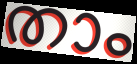
താം